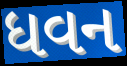
ધવન